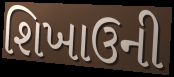
શિખાઉની